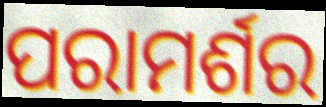
ପରାମର୍ଶର